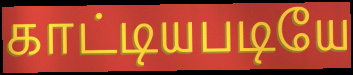
காட்டியபடியே